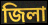
জিলা